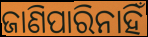
ଜାଣିପାରିନାହିଁ